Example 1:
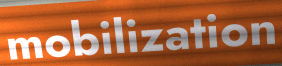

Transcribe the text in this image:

mobilization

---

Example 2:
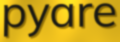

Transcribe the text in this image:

pyare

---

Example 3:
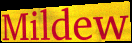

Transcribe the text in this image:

Mildew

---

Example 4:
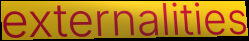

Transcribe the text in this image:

externalities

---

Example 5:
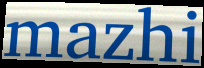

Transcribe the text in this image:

mazhi